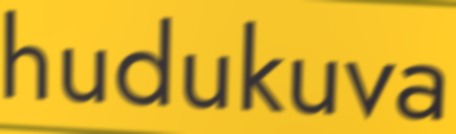
hudukuva